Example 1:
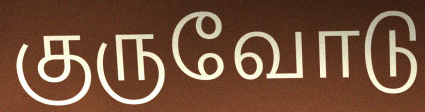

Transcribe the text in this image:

குருவோடு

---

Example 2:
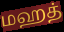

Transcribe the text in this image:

மஹத்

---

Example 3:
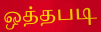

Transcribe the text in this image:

ஒத்தபடி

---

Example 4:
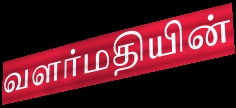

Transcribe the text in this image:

வளர்மதியின்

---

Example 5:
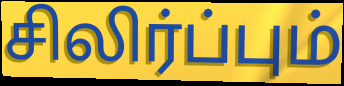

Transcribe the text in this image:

சிலிர்ப்பும்